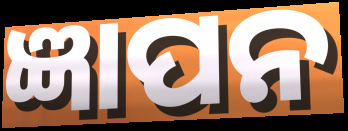
ଜ୍ଞାପନ